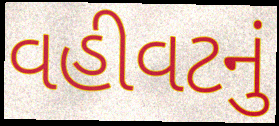
વહીવટનું